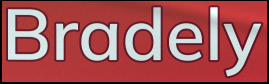
Bradely